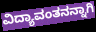
ವಿದ್ಯಾವಂತನನ್ನಾಗಿ